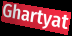
Ghartyat